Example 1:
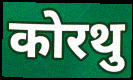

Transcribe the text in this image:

कोरथु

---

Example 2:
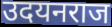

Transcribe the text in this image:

उदयनराज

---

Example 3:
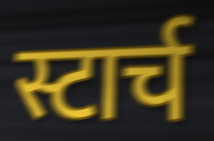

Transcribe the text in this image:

स्टार्च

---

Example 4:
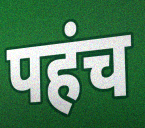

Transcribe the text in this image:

पहंच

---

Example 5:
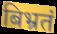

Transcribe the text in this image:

बिभ्रतं